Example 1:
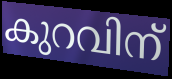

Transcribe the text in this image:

കുറവിന്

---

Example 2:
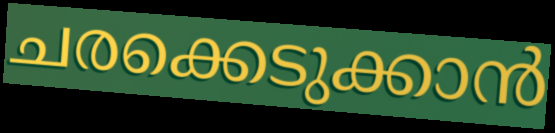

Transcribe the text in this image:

ചരക്കെടുക്കാൻ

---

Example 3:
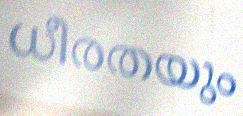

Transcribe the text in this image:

ധീരതയും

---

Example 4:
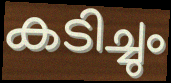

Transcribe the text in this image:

കടിച്ചും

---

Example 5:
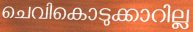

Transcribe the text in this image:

ചെവികൊടുക്കാറില്ല